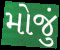
મોજું